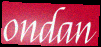
ondan